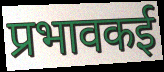
प्रभावकई